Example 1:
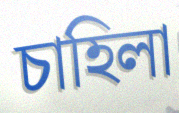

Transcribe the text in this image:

চাহিলা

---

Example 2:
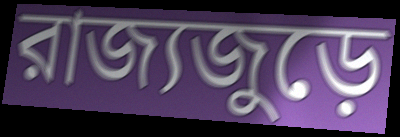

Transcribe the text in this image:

রাজ্যজুড়ে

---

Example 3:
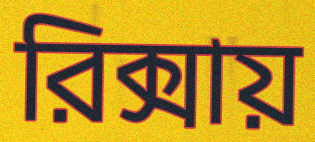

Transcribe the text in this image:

রিক্সায়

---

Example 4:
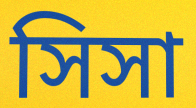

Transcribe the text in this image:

সিসা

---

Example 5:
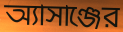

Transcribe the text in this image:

অ্যাসাঞ্জের